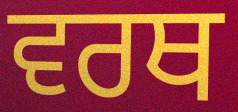
ਵਰਥ